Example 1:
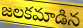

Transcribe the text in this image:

జలకమాడిన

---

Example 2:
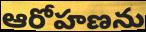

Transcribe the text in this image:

ఆరోహణను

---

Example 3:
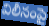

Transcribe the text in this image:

విలీనంపై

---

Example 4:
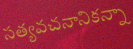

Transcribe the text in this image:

సత్యవచనానికన్నా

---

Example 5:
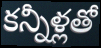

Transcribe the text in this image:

కన్నీళ్లతో